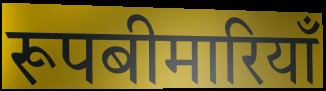
रूपबीमारियाँ